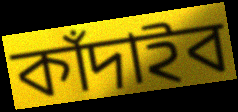
কাঁদাইব